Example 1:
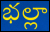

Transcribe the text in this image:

భల్లా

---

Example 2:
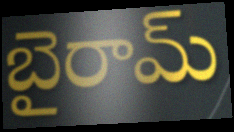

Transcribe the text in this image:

బైరామ్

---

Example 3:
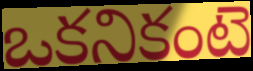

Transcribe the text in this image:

ఒకనికంటె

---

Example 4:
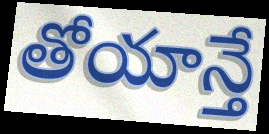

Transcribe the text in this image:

తోయాన్తే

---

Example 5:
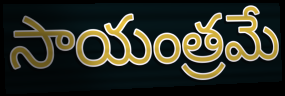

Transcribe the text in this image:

సాయంత్రమే